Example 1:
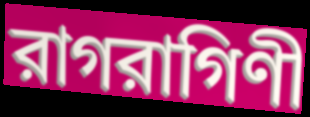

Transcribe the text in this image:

রাগরাগিণী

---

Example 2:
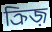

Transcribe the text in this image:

ক্রিজ়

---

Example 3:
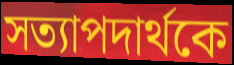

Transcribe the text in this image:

সত্যাপদার্থকে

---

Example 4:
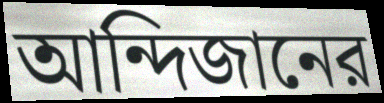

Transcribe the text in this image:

আন্দিজানের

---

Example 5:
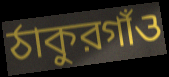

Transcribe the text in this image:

ঠাকুরগাঁও